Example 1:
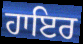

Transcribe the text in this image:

ਹਾਇਰ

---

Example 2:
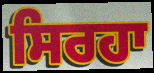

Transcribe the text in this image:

ਸਿਰਹਾ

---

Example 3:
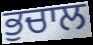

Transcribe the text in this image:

ਭੁਚਾਲ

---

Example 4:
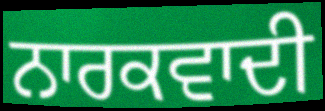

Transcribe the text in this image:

ਨਾਰਕਵਾਦੀ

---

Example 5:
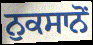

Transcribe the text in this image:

ਨੁਕਸਾਨੋਂ